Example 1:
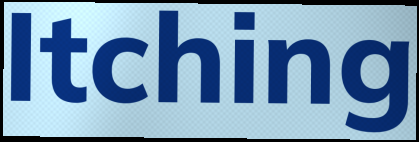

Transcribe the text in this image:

Itching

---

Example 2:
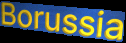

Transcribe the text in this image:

Borussia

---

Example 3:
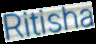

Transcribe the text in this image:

Ritisha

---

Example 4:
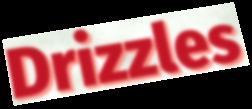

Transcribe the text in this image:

Drizzles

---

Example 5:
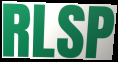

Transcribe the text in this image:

RLSP